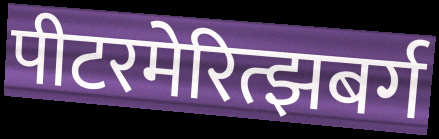
पीटरमेरित्झबर्ग